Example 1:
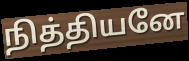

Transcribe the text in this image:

நித்தியனே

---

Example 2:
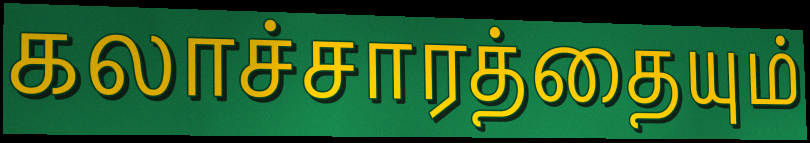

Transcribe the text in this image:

கலாச்சாரத்தையும்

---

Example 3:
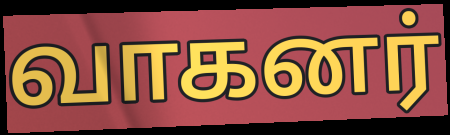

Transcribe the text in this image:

வாகனர்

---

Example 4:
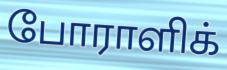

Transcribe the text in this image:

போராளிக்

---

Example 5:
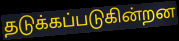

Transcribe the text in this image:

தடுக்கப்படுகின்றன